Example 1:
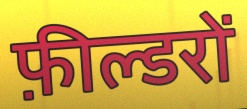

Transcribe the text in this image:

फ़ील्डरों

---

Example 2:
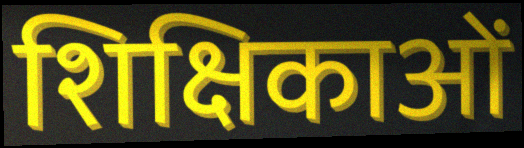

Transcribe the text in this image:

शिक्षिकाओं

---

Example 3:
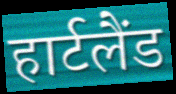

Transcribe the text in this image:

हार्टलैंड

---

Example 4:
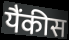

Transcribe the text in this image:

यैंकीस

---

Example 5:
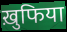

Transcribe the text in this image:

ख़ुफिया